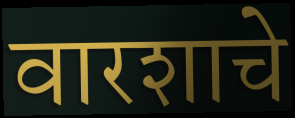
वारशाचे